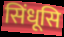
सिंधूसि